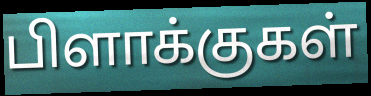
பிளாக்குகள்